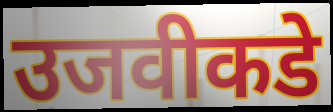
उजवीकडे